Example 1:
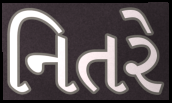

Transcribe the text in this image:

નિતરે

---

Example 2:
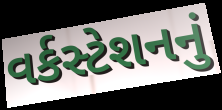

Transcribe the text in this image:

વર્કસ્ટેશનનું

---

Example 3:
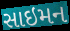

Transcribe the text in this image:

સાઇમન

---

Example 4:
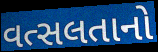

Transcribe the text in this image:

વત્સલતાનો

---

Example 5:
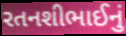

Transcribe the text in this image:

રતનશીભાઈનું